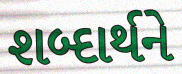
શબ્દાર્થને